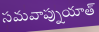
సమవాప్నుయాత్